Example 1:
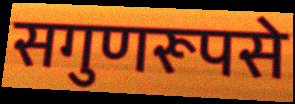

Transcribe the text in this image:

सगुणरूपसे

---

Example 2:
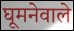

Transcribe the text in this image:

घूमनेवाले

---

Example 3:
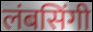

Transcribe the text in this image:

लंबसिंगी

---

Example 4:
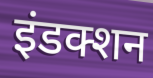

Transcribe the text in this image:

इंडक्शन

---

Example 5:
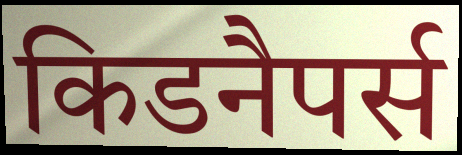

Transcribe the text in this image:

किडनैपर्स